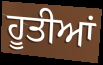
ਹੂਤੀਆਂ